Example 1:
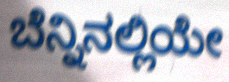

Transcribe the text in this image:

ಬೆನ್ನಿನಲ್ಲಿಯೇ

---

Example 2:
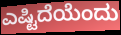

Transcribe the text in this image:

ಎಷ್ಟಿದೆಯೆಂದು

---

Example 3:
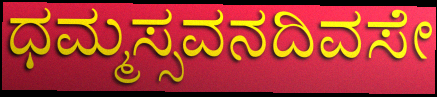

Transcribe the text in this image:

ಧಮ್ಮಸ್ಸವನದಿವಸೇ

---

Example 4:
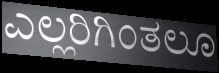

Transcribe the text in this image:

ಎಲ್ಲರಿಗಿಂತಲೂ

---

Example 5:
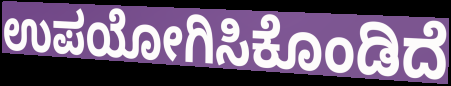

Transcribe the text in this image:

ಉಪಯೋಗಿಸಿಕೊಂಡಿದೆ